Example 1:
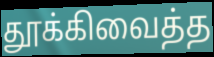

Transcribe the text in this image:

தூக்கிவைத்த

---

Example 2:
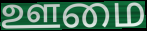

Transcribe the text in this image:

ஊமை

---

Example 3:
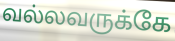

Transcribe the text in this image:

வல்லவருக்கே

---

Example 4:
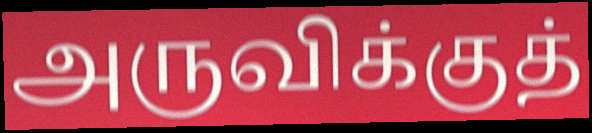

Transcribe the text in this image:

அருவிக்குத்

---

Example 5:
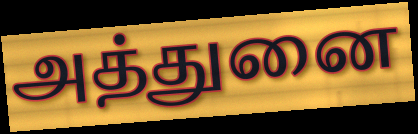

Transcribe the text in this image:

அத்துனை